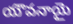
యౌవనాయై